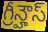
గ్రీన్హౌస్